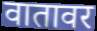
वातावर